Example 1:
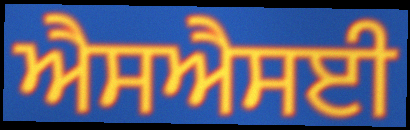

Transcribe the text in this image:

ਐਸਐਸਈ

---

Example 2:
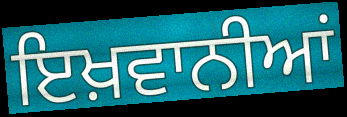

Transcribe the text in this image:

ਇਖ਼ਵਾਨੀਆਂ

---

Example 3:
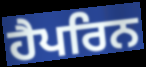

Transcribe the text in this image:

ਹੈਪਰਿਨ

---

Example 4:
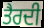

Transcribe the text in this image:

ਤੈਰਦੀ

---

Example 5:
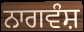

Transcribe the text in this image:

ਨਾਗਵੰਸ਼